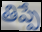
తిప్పే